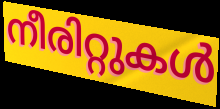
നീരിറ്റുകൾ